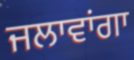
ਜਲਾਵਾਂਗਾ